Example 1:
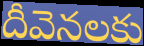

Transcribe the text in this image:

దీవెనలకు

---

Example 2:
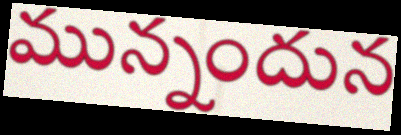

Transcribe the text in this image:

మున్నందున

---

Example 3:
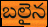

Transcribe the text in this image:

బలైన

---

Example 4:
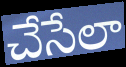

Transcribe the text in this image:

చేసేలా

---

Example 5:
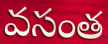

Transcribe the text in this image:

వసంత